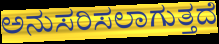
ಅನುಸರಿಸಲಾಗುತ್ತದೆ